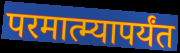
परमात्म्यापर्यंत